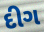
દીગ